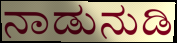
ನಾಡುನುಡಿ